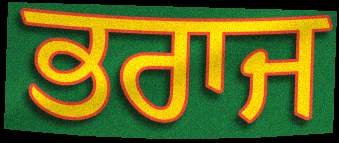
ਭਰਾਜ